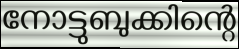
നോട്ടുബുക്കിന്റെ